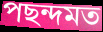
পছন্দমত